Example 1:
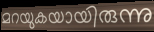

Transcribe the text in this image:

മറയുകയായിരുന്നു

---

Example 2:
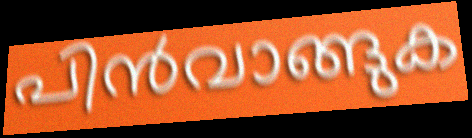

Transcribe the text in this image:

പിൻവാങ്ങുക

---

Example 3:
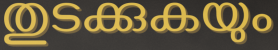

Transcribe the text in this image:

തുടക്കുകയും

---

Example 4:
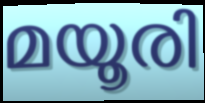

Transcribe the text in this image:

മയൂരി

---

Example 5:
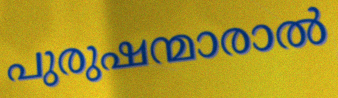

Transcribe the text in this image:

പുരുഷന്മാരാൽ